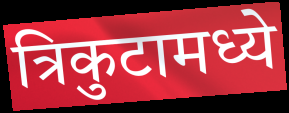
त्रिकुटामध्ये